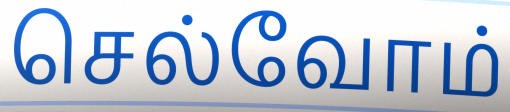
செல்வோம்